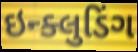
ઇન્ક્લુડિંગ